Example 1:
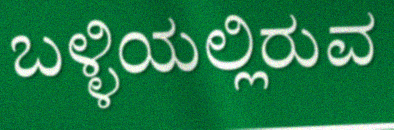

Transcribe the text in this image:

ಬಳ್ಳಿಯಲ್ಲಿರುವ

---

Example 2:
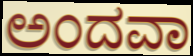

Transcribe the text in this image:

ಅಂದವಾ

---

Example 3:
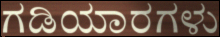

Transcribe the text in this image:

ಗಡಿಯಾರಗಳು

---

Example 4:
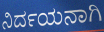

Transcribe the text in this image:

ನಿರ್ದಯನಾಗಿ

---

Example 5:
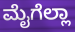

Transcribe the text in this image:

ಮೈಗೆಲ್ಲಾ